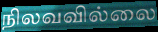
நிலவவில்லை